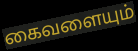
கைவளையும்